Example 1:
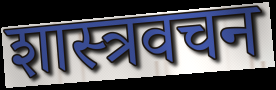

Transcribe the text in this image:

शास्त्रवचन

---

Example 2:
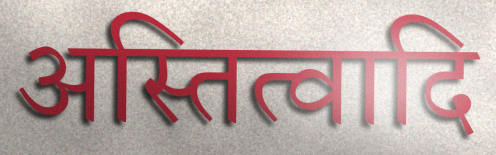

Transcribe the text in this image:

अस्तित्वादि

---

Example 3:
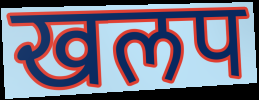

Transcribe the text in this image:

खलप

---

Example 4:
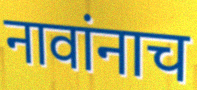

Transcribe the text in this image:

नावांनाच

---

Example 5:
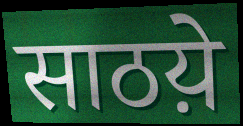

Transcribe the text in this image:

साठय़े